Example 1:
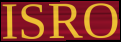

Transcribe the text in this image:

ISRO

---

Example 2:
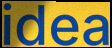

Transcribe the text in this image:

idea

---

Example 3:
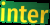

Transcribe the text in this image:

inter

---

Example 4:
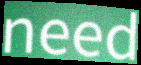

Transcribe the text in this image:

need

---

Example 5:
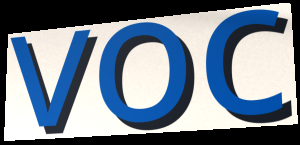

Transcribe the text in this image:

voc